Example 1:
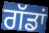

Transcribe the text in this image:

ਗੱਡਾਂ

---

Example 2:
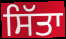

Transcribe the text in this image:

ਸਿੱਤਾ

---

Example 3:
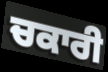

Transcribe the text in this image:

ਚਕਾਰੀ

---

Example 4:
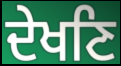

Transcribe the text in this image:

ਦੇਖਣਿ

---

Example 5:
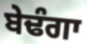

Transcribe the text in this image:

ਬੇਢੰਗਾ